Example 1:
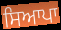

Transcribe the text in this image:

ਸਿਆਪਾ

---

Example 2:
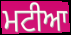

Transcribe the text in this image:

ਮਟੀਆ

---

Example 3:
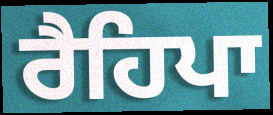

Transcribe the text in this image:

ਰੈਹਿਪਾ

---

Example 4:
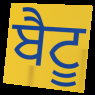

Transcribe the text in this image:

ਬੈਟੂ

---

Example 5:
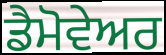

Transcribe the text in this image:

ਡੈਮੋਵੇਅਰ